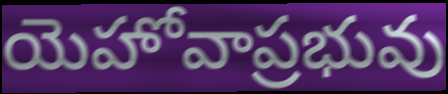
యెహోవాప్రభువు